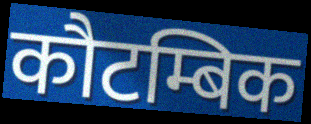
कौटम्बिक